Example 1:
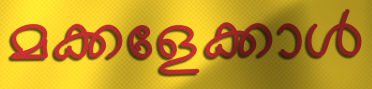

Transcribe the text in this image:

മക്കളേക്കാൾ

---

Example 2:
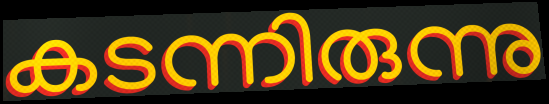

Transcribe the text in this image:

കടന്നിരുന്നു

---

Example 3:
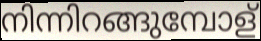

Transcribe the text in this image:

നിന്നിറങ്ങുമ്പോള്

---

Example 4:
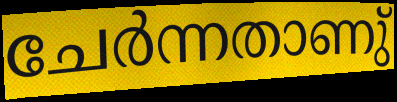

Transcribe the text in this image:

ചേർന്നതാണു്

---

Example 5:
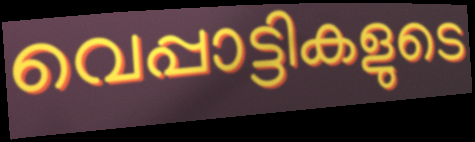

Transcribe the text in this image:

വെപ്പാട്ടികളുടെ